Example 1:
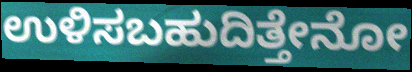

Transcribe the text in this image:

ಉಳಿಸಬಹುದಿತ್ತೇನೋ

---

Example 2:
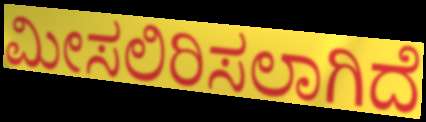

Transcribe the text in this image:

ಮೀಸಲಿರಿಸಲಾಗಿದೆ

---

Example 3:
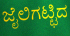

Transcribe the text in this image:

ಜೈಲಿಗಟ್ಟಿದ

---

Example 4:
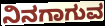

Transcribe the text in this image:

ನಿನಗಾಗುವ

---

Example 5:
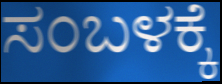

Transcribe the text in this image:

ಸಂಬಳಕ್ಕೆ